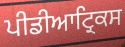
ਪੀਡੀਆਟ੍ਰਿਕਸ